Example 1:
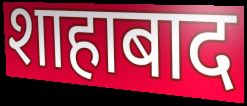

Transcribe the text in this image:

शाहाबाद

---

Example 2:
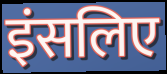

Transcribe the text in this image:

इंसलिए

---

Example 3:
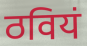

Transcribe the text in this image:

ठवियं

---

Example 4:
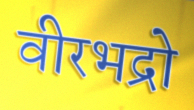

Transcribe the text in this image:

वीरभद्रो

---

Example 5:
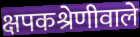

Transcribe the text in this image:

क्षपकश्रेणीवाले